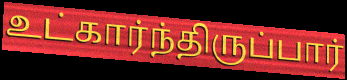
உட்கார்ந்திருப்பார்